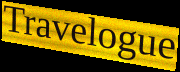
Travelogue